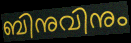
ബിനുവിനും